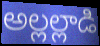
అల్లల్లాడి